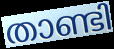
താണ്ടി